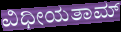
ವಿಧೀಯತಾಮ್